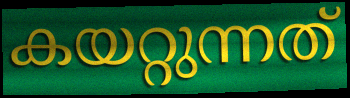
കയറ്റുന്നത്